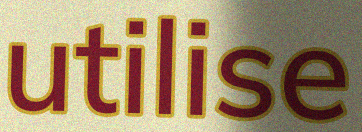
utilise